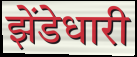
झेंडेधारी